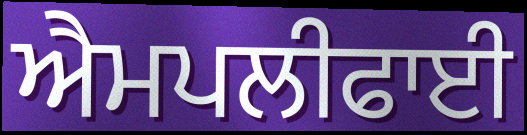
ਐਮਪਲੀਫਾਈ